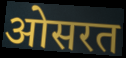
ओसरत